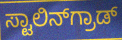
ಸ್ಟಾಲಿನ್‌ಗ್ರಾಡ್